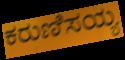
ಕರುಣಿಸಯ್ಯ